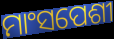
ମାଂସପେଶୀ